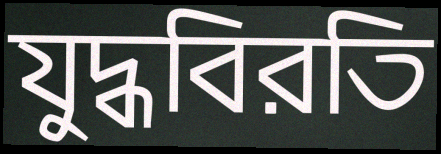
যুদ্ধবিরতি